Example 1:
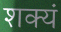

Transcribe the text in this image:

शक्यं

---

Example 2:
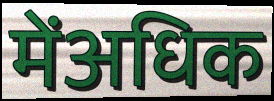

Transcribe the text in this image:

मेंअधिक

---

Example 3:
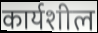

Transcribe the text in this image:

कार्यशील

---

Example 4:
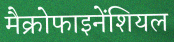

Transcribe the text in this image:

मैक्रोफाइनेंशियल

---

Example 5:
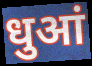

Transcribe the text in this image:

धुआं